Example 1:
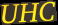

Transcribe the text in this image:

UHC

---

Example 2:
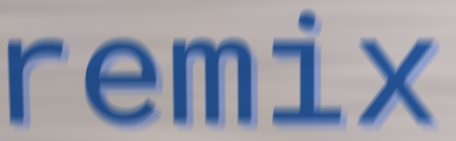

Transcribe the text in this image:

remix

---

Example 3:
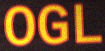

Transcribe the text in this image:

OGL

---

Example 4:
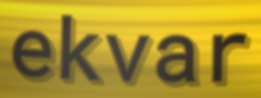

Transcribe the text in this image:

ekvar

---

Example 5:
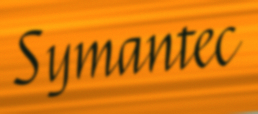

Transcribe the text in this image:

Symantec